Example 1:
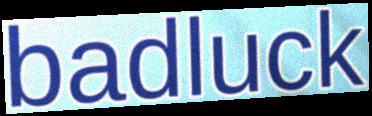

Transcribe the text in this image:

badluck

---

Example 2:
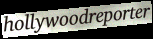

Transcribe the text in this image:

hollywoodreporter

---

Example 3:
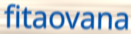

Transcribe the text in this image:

fitaovana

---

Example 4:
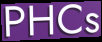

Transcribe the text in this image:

PHCs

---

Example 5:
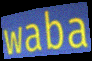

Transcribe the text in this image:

waba